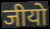
जीयो